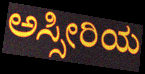
ಅಸ್ಸೀರಿಯ